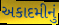
અકાદમીનું